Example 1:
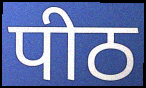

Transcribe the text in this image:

पीठ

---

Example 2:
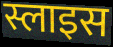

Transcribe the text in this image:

स्लाइस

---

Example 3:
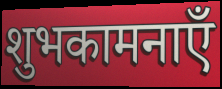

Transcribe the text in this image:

शुभकामनाएँ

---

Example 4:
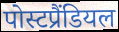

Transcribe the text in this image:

पोस्टप्रैंडियल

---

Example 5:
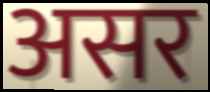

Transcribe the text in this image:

असर